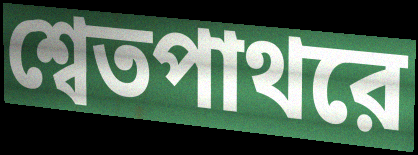
শ্বেতপাথরে